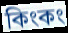
কিংকং